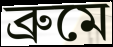
ব্রুমে